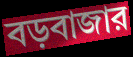
বড়বাজার